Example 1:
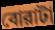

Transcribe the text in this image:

বোরাটা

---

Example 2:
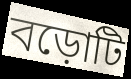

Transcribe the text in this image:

বড়োটি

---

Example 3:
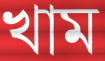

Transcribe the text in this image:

খাম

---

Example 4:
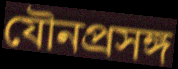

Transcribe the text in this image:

যৌনপ্রসঙ্গ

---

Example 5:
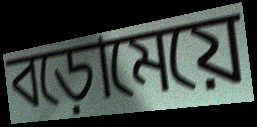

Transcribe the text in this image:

বড়োমেয়ে